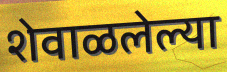
शेवाळलेल्या